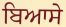
ਬਿਆਸੇ